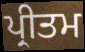
ਪ੍ਰੀਤਮ